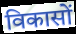
विकासों